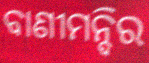
ବାଣୀମନ୍ଦିର